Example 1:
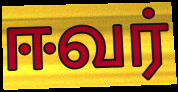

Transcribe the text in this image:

ஈவர்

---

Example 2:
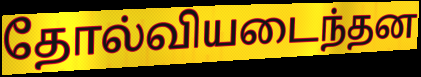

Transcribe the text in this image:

தோல்வியடைந்தன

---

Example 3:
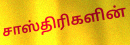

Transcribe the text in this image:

சாஸ்திரிகளின்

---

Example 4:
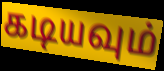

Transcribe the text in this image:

கடியவும்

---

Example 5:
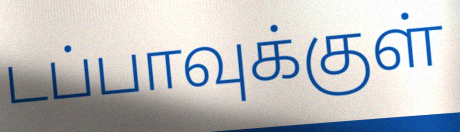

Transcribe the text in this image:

டப்பாவுக்குள்